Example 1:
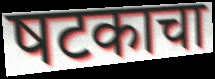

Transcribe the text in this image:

षटकाचा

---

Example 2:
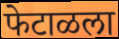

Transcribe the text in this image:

फेटाळला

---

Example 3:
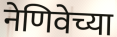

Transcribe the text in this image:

नेणिवेच्या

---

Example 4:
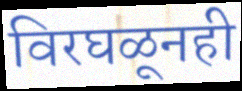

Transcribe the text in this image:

विरघळूनही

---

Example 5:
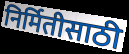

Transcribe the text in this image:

निर्मितीसाठी